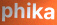
phika